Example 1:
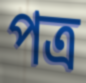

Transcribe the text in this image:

পত্ৰ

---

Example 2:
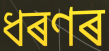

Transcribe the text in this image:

ধৰণৰ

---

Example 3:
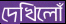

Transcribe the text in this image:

দেখিলোঁ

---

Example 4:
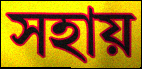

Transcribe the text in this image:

সহায়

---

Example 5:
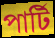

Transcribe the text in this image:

পাৰ্টি